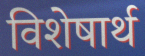
विशेषार्थ